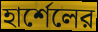
হার্শেলের